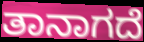
ತಾನಾಗದೆ